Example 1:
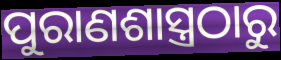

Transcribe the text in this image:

ପୁରାଣଶାସ୍ତ୍ରଠାରୁ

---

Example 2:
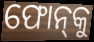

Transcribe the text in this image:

ଫୋନ୍‌କୁ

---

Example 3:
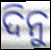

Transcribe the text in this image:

ଦିନୁ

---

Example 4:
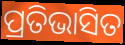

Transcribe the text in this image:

ପ୍ରତିଭାସିତ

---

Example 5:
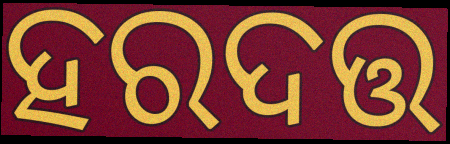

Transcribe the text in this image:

ହରଦତ୍ତ